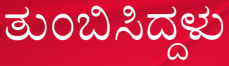
ತುಂಬಿಸಿದ್ದಳು